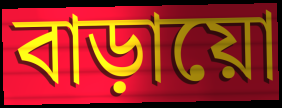
বাড়ায়ো